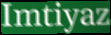
Imtiyaz